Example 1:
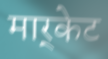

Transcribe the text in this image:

मार्केट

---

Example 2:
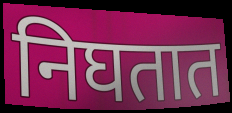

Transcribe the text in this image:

निघतात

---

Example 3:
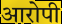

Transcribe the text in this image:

आरोपी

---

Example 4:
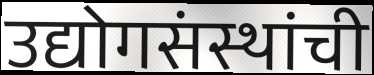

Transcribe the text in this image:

उद्योगसंस्थांची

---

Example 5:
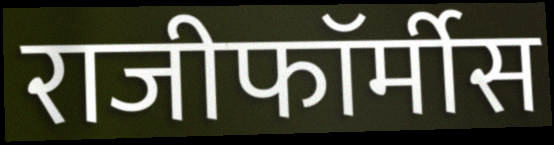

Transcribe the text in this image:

राजीफॉर्मीस